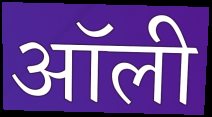
ऑली